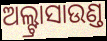
ଅଲ୍ଟ୍ରାସାଉଣ୍ଡ